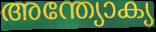
അന്ത്യോക്യ